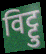
विट्टु